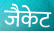
जैकेट